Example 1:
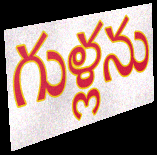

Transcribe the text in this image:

గుళ్లను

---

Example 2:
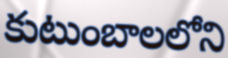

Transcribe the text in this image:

కుటుంబాలలోని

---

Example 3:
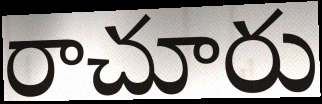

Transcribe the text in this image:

రాచూరు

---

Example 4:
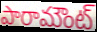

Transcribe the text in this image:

పారామౌంట్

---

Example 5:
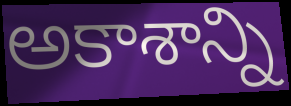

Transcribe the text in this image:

అకాశాన్ని